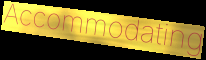
Accommodating